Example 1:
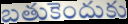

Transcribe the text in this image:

బతుకెందుకు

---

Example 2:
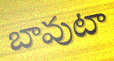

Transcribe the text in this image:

బావుటా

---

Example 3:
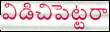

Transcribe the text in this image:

విడిచిపెట్టరా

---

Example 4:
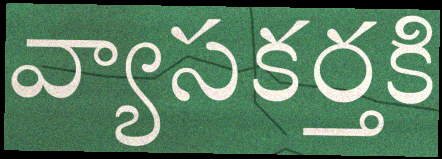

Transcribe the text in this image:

వ్యాసకర్తకి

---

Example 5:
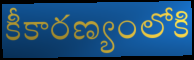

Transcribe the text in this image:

కీకారణ్యంలోకి